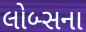
લોબ્સના